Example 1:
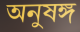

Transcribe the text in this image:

অনুষঙ্গ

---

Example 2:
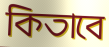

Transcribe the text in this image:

কিতাবে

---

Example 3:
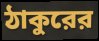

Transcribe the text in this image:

ঠাকুরের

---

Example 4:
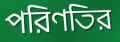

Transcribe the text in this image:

পরিণতির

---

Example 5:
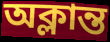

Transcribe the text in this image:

অক্লান্ত